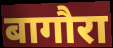
बागौरा